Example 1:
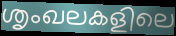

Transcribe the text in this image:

ശൃംഖലകളിലെ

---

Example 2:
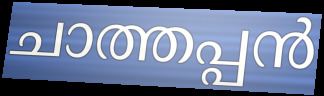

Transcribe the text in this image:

ചാത്തപ്പൻ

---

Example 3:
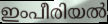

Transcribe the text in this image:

ഇംപീരിയൽ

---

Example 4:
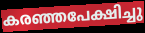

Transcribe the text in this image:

കരഞ്ഞപേക്ഷിച്ചു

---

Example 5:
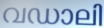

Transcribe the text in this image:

വഡാലി